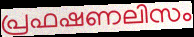
പ്രഫഷണലിസം